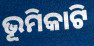
ଭୂମିକାଟି